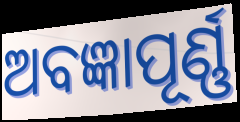
ଅବଜ୍ଞାପୂର୍ଣ୍ଣ